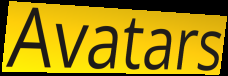
Avatars